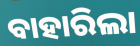
ବାହାରିଲା